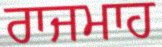
ਰਾਜਮਾਹ